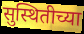
सुस्थितीच्या